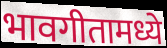
भावगीतामध्ये